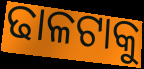
ଢାଳଟାକୁ